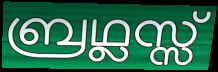
ബ്രഥ്ലസ്സ്